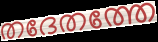
തദേതത്തേ